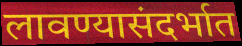
लावण्यासंदर्भात